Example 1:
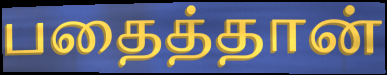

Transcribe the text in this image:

பதைத்தான்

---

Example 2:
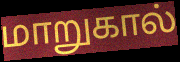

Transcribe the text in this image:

மாறுகால்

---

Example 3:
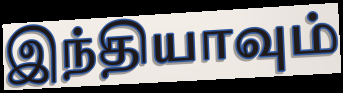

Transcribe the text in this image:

இந்தியாவும்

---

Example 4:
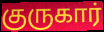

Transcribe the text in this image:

குருகார்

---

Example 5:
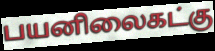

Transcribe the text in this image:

பயனிலைகட்கு